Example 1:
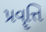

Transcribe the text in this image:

પ્રવૄત્તિ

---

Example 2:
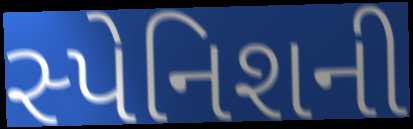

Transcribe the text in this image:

સ્પેનિશની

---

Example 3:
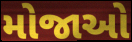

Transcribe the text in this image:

મોજાઓ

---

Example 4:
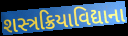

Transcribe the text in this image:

શસ્ત્રક્રિયાવિદ્યાના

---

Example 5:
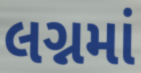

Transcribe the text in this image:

લગ્નમાં